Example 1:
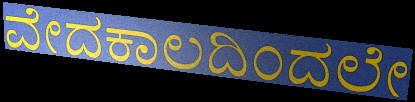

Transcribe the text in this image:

ವೇದಕಾಲದಿಂದಲೇ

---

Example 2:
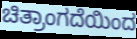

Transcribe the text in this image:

ಚಿತ್ರಾಂಗದೆಯಿಂದ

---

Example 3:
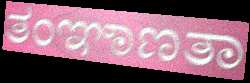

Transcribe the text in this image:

ತಂಞಾಣತಾ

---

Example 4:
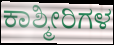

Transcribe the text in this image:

ಕಾಶ್ಮೀರಿಗಳ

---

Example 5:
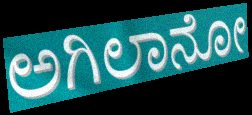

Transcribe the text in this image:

ಅಗಿಲಾನೋ